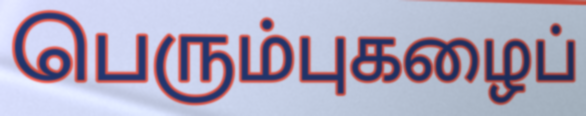
பெரும்புகழைப்